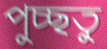
পুচ্ছতু